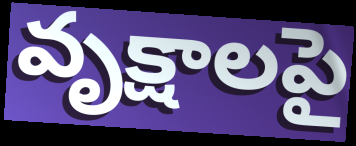
వృక్షాలపై